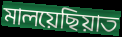
মালয়েছিয়াত